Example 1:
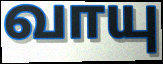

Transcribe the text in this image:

வாயு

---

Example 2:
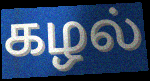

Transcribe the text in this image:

கழல்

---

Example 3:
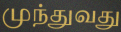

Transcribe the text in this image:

முந்துவது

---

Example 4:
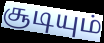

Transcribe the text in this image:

சூடியும்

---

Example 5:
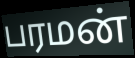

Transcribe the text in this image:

பரமன்